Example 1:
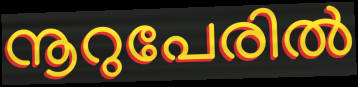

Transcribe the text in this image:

നൂറുപേരിൽ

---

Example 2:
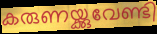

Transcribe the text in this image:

കരുണയ്ക്കുവേണ്ടി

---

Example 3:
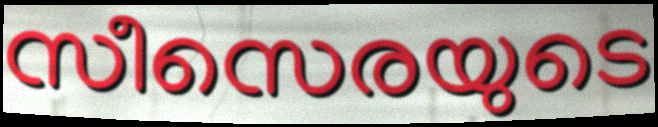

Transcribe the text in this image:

സീസെരയുടെ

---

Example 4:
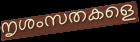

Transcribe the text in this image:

നൃശംസതകളെ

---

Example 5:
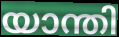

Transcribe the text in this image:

യാന്തി